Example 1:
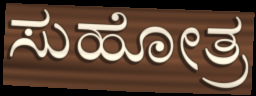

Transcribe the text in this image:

ಸುಹೋತ್ರ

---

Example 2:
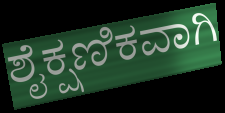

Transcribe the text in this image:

ಶೈಕ್ಷಣಿಕವಾಗಿ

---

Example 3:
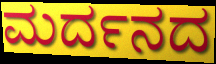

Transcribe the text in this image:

ಮರ್ದನದ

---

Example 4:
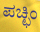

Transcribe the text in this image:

ಪಚ್ಛಿಂ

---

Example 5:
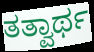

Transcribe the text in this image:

ತತ್ವಾರ್ಥ